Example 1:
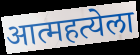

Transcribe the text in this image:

आत्महत्येला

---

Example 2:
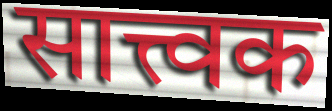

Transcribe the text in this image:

सात्त्वक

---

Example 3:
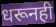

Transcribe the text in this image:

धरूनही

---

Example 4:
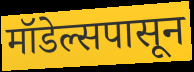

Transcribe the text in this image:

मॉडेल्सपासून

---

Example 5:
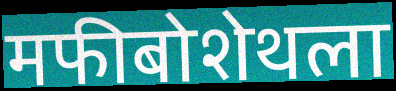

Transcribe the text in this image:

मफीबोशेथला